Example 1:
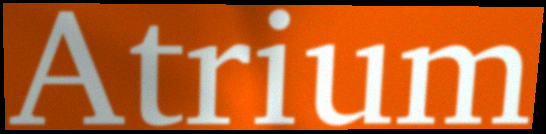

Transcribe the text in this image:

Atrium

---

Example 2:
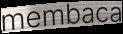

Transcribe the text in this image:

membaca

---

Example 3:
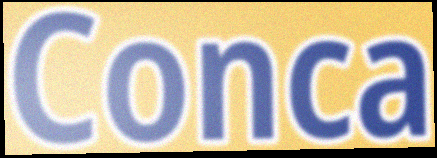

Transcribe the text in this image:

Conca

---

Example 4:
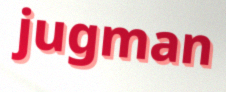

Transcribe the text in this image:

jugman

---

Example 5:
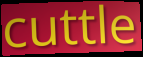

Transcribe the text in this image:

cuttle